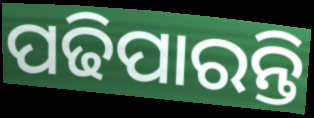
ପଢିପାରନ୍ତି